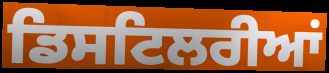
ਡਿਸਟਿਲਰੀਆਂ